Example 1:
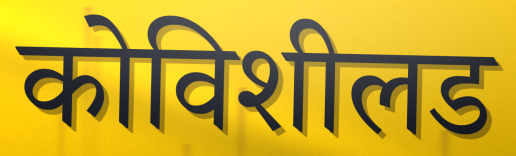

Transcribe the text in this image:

कोविशीलड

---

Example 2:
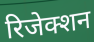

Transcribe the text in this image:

रिजेक्शन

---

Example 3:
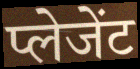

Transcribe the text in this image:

प्लेजेंट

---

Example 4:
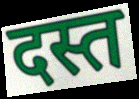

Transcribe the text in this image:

दस्त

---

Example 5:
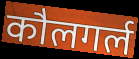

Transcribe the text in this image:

कौलगर्ल